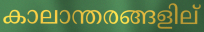
കാലാന്തരങ്ങളില്